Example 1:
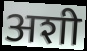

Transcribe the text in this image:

अशी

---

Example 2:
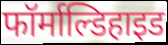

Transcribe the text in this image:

फॉर्माल्डिहाइड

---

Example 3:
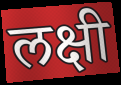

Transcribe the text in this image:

लक्षी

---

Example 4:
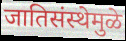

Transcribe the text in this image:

जातिसंस्थेमुळे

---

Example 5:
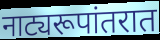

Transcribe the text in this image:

नाट्यरूपांतरात